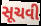
સૂચવી